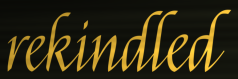
rekindled